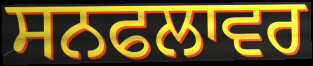
ਸਨਫਲਾਵਰ